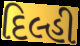
દિલ્હી